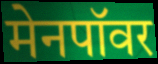
मेनपॉवर